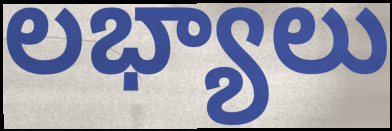
లభ్యాలు